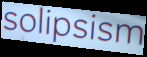
solipsism